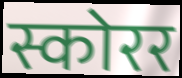
स्कोरर